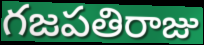
గజపతిరాజు